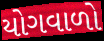
યોગવાળો